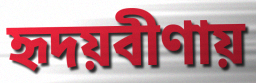
হৃদয়বীণায়